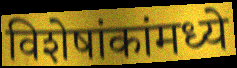
विशेषांकांमध्ये